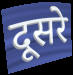
दूसरे